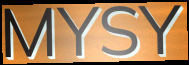
MYSY